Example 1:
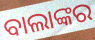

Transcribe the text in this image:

ବାଲାଙ୍କର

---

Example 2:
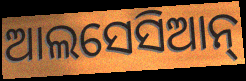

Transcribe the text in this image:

ଆଲସେସିଆନ୍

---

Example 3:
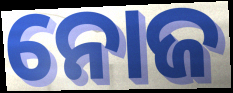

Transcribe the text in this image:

ନୋଜ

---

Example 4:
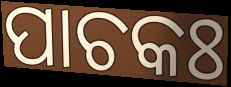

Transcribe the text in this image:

ପାଚକଃ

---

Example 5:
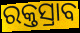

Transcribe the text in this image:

ରକ୍ତସ୍ରାବ